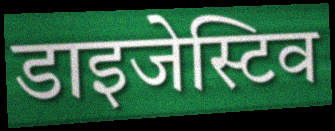
डाइजेस्टिव